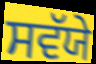
ਸਵੱਯੇ